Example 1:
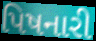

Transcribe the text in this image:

પિષનારી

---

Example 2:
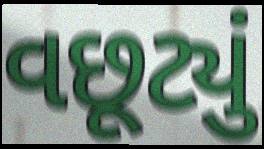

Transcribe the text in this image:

વછૂટ્યું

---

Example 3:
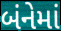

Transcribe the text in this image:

બંનેમાં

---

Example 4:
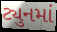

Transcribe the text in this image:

ટ્યુનમાં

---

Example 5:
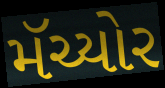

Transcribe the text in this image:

મૅચ્યોર